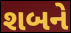
શબને